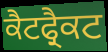
ਕੈਟਫ੍ਰੈਕਟ